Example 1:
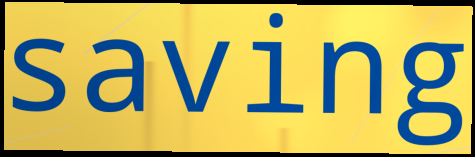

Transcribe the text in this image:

saving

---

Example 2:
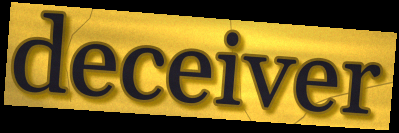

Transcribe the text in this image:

deceiver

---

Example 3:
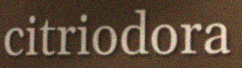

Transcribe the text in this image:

citriodora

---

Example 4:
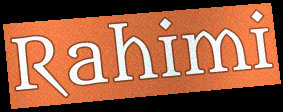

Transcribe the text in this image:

Rahimi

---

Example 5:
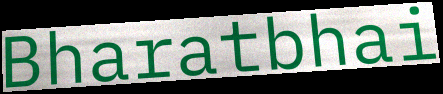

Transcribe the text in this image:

Bharatbhai